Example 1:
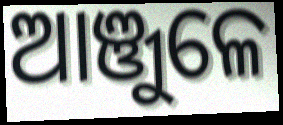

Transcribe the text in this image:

ଆଞ୍ଜୁଳେ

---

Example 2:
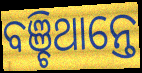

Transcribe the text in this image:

ବଞ୍ଚିଥାନ୍ତେ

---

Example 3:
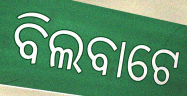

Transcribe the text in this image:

ବିଲବାଟେ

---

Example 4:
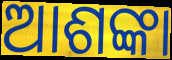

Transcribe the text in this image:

ଆଶଙ୍କା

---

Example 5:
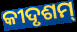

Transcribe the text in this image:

କୀଦୃଶମ୍